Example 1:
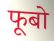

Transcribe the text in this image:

फूबो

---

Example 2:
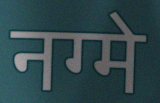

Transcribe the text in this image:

नग्मे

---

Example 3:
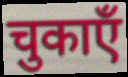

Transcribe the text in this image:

चुकाएँ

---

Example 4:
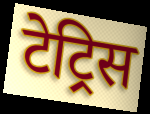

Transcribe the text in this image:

टेट्रिस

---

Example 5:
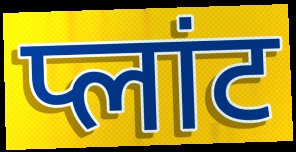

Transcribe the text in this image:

प्लांट